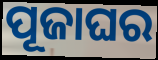
ପୂଜାଘର